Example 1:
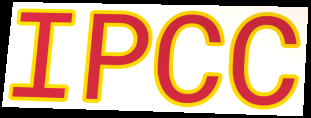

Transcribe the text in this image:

IPCC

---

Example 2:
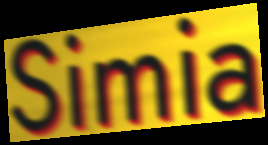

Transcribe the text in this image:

Simia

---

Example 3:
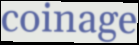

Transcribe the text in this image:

coinage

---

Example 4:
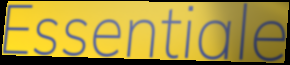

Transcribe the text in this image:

Essentiale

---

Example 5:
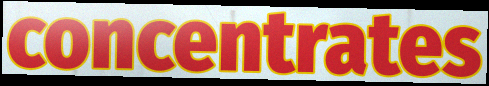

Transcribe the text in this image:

concentrates